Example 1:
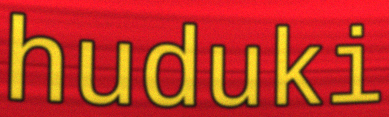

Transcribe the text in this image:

huduki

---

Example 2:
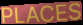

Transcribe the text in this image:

PLACES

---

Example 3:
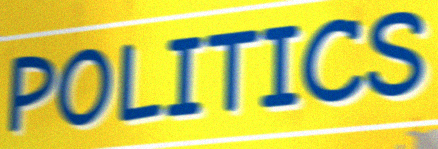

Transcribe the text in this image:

POLITICS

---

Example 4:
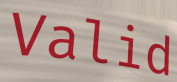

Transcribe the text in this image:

Valid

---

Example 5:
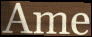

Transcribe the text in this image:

Ame